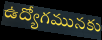
ఉద్యోగమునకు